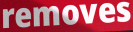
removes